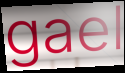
gael